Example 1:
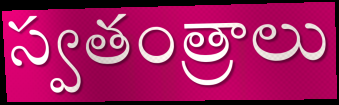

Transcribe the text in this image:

స్వతంత్రాలు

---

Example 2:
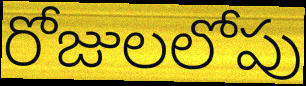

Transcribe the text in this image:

రోజులలోపు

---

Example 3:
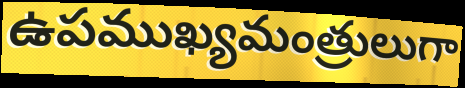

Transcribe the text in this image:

ఉపముఖ్యమంత్రులుగా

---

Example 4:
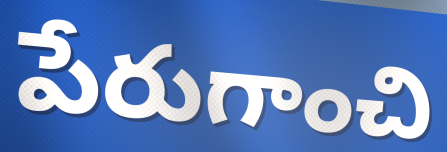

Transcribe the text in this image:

పేరుగాంచి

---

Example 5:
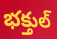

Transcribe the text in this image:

భక్తుల్